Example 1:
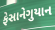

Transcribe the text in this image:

ફેસાનેગુયાન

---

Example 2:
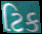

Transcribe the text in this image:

ટિક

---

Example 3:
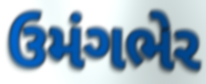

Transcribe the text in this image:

ઉમંગભેર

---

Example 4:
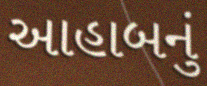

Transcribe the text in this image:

આહાબનું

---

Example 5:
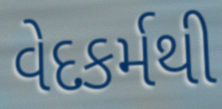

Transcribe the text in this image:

વેદકર્મથી